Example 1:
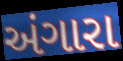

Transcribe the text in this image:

અંગારા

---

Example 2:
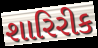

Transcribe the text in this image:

શારિરીક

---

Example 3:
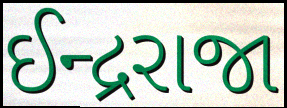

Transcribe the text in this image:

ઈન્દ્રરાજા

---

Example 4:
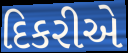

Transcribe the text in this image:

દિકરીએ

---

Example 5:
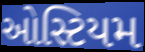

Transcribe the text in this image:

ઓસ્ટિયમ